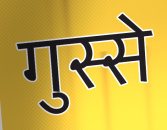
गुस्‍से